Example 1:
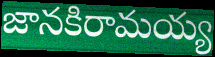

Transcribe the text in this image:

జానకిరామయ్య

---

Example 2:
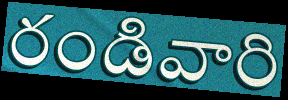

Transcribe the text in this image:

రండివారి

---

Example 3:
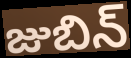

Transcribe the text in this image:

జుబిన్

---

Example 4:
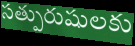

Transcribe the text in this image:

సత్పురుషులకు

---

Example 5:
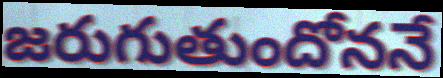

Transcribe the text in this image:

జరుగుతుందోననే